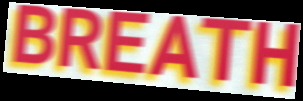
BREATH